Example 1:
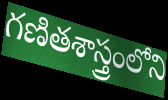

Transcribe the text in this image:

గణితశాస్త్రంలోని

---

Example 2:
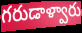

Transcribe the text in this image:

గరుడాళ్వారు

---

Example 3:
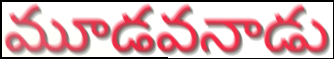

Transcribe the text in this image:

మూడవనాడు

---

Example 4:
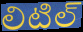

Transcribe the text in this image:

లిటిల్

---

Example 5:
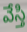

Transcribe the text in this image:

వేస్తి